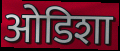
ओडिशा